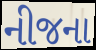
નીજના